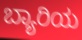
ಬ್ಯಾರಿಯ